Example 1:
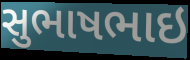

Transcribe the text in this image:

સુભાષભાઇ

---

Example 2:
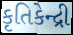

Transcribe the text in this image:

કૃતિકેન્દ્રી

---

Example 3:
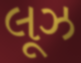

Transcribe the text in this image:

લૂઝ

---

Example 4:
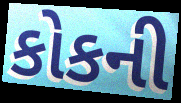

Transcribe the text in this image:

કોકની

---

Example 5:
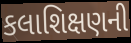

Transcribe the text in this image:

કલાશિક્ષણની